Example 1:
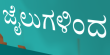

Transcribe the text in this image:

ಜೈಲುಗಳಿಂದ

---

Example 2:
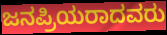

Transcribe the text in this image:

ಜನಪ್ರಿಯರಾದವರು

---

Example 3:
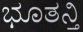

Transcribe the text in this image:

ಭೂತನ್ತಿ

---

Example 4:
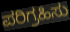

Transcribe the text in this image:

ಪರಿಗ್ರಹಿಸು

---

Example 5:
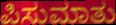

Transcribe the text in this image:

ಪಿಸುಮಾತು